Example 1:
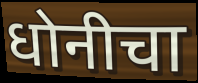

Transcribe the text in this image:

धोनीचा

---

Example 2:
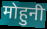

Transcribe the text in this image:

मोहुनी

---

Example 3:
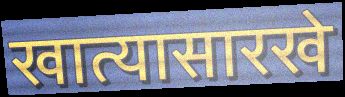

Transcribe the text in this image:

खात्यासारखे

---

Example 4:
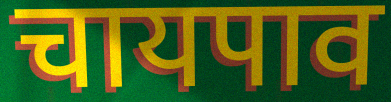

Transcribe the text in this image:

चायपाव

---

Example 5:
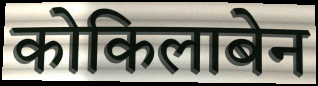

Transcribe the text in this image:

कोकिलाबेन